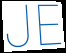
JE